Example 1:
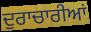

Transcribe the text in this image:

ਦੁਰਾਚਾਰੀਆਂ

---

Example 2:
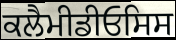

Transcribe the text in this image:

ਕਲੈਮੀਡੀਓਸਿਸ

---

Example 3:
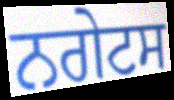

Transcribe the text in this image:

ਨਗੇਟਸ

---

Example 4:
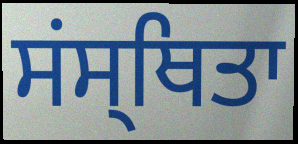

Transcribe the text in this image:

ਸਂਸ੍ਥਿਤਾ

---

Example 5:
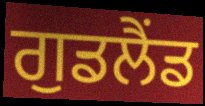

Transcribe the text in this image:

ਗੁਡਲੈਂਡ